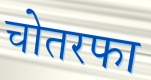
चोतरफा